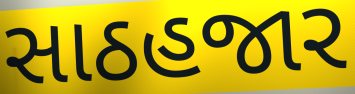
સાઠહજાર